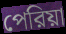
পেরিয়া